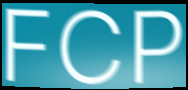
FCP